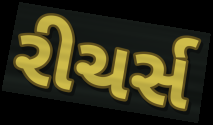
રીચર્સ